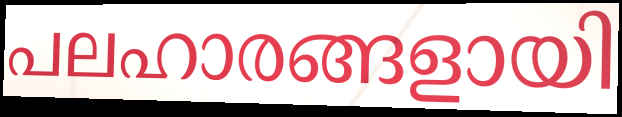
പലഹാരങ്ങളായി